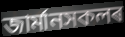
জাৰ্মানসকলৰ